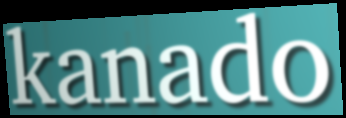
kanado